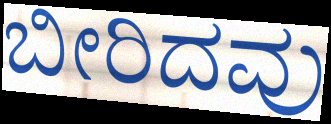
ಬೀರಿದವು